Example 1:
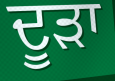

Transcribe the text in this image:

ਦੂੜਾ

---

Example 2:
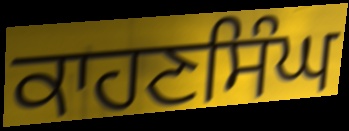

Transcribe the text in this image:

ਕਾਹਣਸਿੰਘ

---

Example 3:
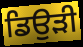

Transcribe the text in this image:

ਡਿਉੜੀ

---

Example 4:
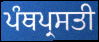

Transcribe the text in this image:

ਪੰਥਪ੍ਰਸਤੀ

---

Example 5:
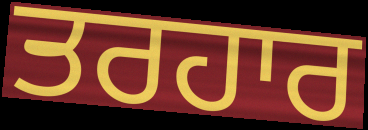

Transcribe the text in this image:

ਤਰਹਾਰ